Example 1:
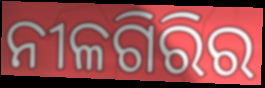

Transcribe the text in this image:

ନୀଳଗିରିର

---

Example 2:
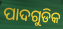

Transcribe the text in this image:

ପାଦଗୁଡିକ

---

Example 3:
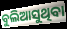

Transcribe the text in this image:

ବୁଲିଆସୁଥିବା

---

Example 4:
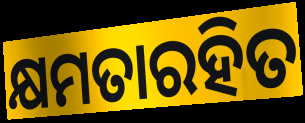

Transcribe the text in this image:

କ୍ଷମତାରହିତ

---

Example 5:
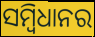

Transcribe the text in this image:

ସମ୍ବିଧାନର